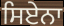
ਸਿਏਨਾ